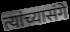
त्यांच्यासंगे